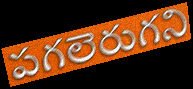
పగలెరుగని